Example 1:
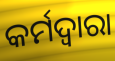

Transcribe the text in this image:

କର୍ମଦ୍ୱାରା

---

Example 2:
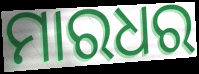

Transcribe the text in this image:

ମାରଧର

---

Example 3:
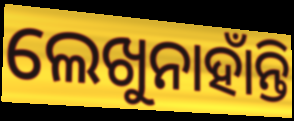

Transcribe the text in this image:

ଲେଖୁନାହାଁନ୍ତି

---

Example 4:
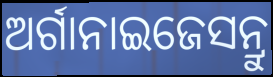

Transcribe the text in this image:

ଅର୍ଗାନାଇଜେସନ୍ରୁ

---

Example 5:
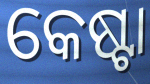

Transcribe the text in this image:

କେଷ୍ଟା